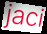
jaci